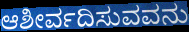
ಆಶೀರ್ವದಿಸುವವನು